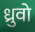
ध्रुवो